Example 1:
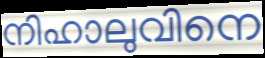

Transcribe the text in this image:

നിഹാലുവിനെ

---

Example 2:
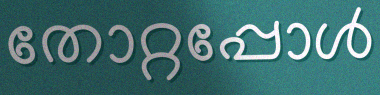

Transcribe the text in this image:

തോറ്റപ്പോൾ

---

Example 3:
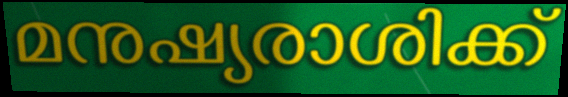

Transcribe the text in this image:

മനുഷ്യരാശിക്ക്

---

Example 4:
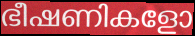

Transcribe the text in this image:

ഭീഷണികളോ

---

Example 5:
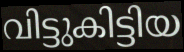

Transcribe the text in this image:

വിട്ടുകിട്ടിയ